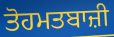
ਤੋਹਮਤਬਾਜ਼ੀ